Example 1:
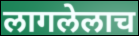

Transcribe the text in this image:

लागलेलाच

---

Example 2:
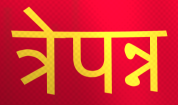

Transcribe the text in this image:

त्रेपन्न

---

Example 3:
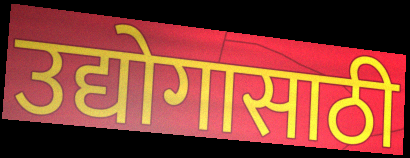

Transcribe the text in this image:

उद्योगासाठी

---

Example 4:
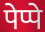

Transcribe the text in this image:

पेप्पे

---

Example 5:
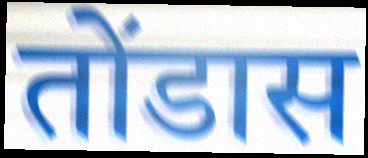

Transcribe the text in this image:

तोंडास